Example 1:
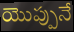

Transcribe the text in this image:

యొప్పునే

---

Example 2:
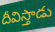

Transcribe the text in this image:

దీవిస్తాడు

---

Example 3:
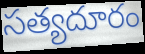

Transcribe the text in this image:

సత్యదూరం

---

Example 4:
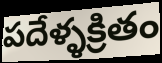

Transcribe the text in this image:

పదేళ్ళక్రితం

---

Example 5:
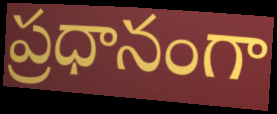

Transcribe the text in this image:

ప్రధానంగా